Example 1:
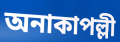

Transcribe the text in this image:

অনাকাপল্লী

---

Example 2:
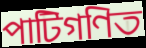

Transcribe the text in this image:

পাটিগণিত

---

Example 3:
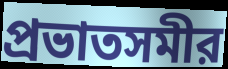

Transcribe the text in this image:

প্রভাতসমীর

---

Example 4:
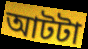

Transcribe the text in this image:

আটটা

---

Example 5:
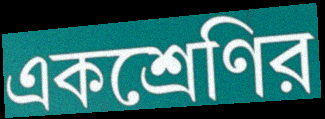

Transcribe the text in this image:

একশ্রেণির